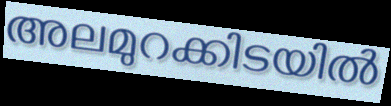
അലമുറക്കിടയിൽ